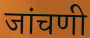
जांचणी